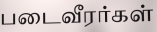
படைவீரர்கள்